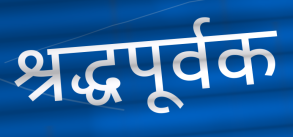
श्रद्धपूर्वक